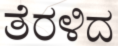
ತೆರಳಿದ